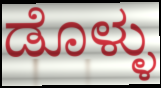
ಡೊಳ್ಳು